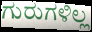
ಗುರುಗಳಿಲ್ಲ